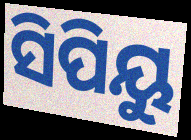
ସିପିୟୁ